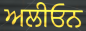
ਅਲੀਓਨ